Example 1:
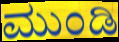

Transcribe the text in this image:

ಮುಂಡಿ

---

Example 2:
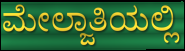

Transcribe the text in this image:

ಮೇಲ್ಜಾತಿಯಲ್ಲಿ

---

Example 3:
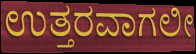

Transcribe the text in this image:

ಉತ್ತರವಾಗಲೀ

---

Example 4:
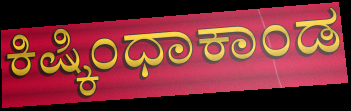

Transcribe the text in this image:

ಕಿಷ್ಕಿಂಧಾಕಾಂಡ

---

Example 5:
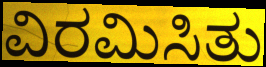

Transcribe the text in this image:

ವಿರಮಿಸಿತು